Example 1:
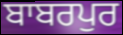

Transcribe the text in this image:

ਬਾਬਰਪੁਰ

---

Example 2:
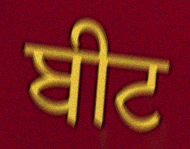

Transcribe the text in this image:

ਬੀਟ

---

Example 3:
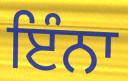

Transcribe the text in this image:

ਇੰਨਾ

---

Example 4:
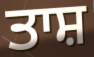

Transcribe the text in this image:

ਤਾਸ਼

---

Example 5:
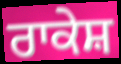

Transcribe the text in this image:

ਰਾਕੇਸ਼